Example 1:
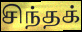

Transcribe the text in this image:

சிந்தக்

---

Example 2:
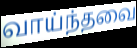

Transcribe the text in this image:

வாய்ந்தவை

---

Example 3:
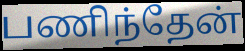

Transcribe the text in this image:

பணிந்தேன்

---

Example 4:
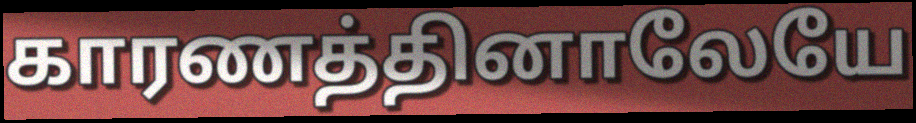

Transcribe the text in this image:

காரணத்தினாலேயே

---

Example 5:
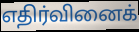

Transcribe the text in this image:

எதிர்வினைக்